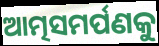
ଆତ୍ମସମର୍ପଣକୁ